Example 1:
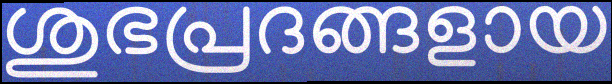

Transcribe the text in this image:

ശുഭപ്രദങ്ങളായ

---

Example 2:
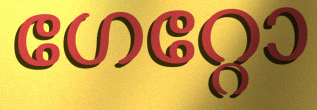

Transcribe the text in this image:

ഗേറ്റോ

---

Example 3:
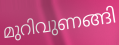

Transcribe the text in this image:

മുറിവുണങ്ങി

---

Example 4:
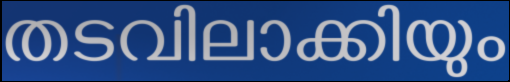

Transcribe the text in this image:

തടവിലാക്കിയും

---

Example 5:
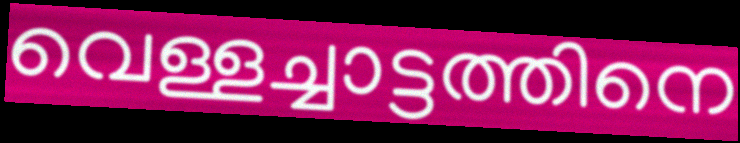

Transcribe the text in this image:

വെള്ളച്ചാട്ടത്തിനെ